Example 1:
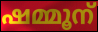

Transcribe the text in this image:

ഷമ്മൂന്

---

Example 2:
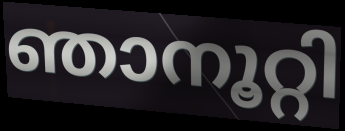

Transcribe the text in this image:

ഞാനൂറ്റി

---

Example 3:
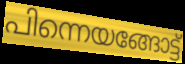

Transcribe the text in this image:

പിന്നെയങ്ങോട്ട്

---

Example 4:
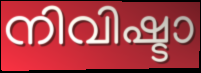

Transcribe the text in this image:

നിവിഷ്ടാ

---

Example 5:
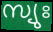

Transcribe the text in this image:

സ്യുഃ